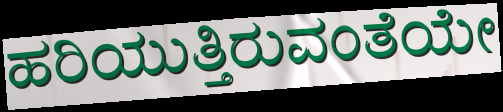
ಹರಿಯುತ್ತಿರುವಂತೆಯೇ